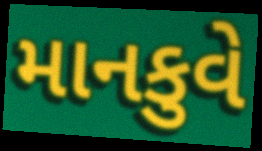
માનકુવે